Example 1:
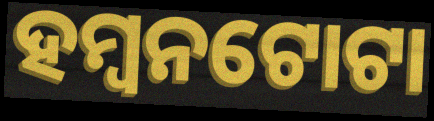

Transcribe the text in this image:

ହମ୍ବନଟୋଟା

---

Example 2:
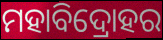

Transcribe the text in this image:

ମହାବିଦ୍ରୋହର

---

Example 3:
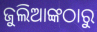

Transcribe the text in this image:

ଜୁଲିଆଙ୍କଠାରୁ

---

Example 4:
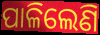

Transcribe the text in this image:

ପାଳିଲେଣି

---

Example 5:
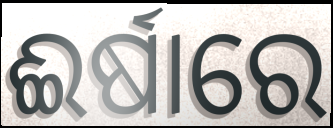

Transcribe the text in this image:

ଈର୍ଷାରେ